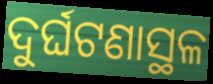
ଦୁର୍ଘଟଣାସ୍ଥଳ